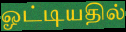
ஓட்டியதில்